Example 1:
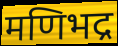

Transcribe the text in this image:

मणिभद्र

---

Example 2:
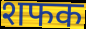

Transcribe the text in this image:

शफक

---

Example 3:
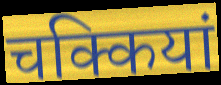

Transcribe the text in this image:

चक्कियां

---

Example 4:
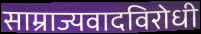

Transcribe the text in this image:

साम्राज्यवादविरोधी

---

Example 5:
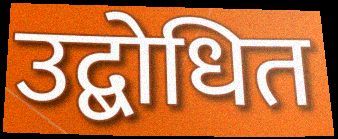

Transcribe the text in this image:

उद्बोधित